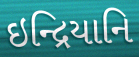
ઇન્દ્રિયાનિ